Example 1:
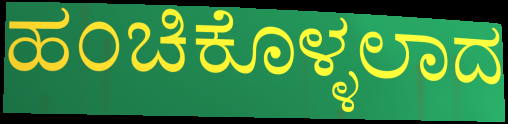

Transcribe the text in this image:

ಹಂಚಿಕೊಳ್ಳಲಾದ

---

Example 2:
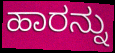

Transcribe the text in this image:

ಹಾರನ್ನು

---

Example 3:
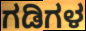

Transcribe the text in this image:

ಗಡಿಗಳ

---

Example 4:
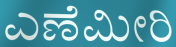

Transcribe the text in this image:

ಎಣೆಮೀರಿ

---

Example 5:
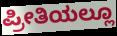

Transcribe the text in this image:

ಪ್ರೀತಿಯಲ್ಲೂ